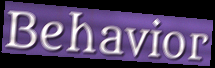
Behavior